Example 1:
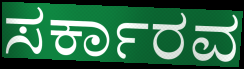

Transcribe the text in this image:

ಸರ್ಕಾರವ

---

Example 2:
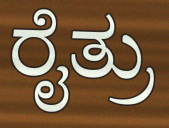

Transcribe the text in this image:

ರೈತ್ರು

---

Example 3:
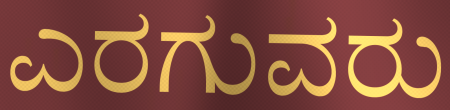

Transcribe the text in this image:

ಎರಗುವರು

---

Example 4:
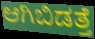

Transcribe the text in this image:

ಆಗಿಬಿಡತ್ತೆ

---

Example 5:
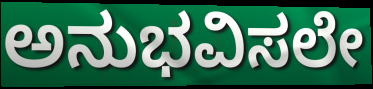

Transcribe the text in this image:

ಅನುಭವಿಸಲೇ